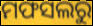
ମଫସଲରୁ